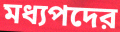
মধ্যপদের